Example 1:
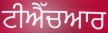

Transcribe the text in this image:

ਟੀਐੱਚਆਰ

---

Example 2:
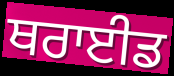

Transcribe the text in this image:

ਥਰਾਈਡ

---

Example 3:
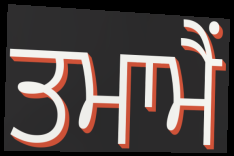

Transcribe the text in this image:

ਤਮਾਮੈਂ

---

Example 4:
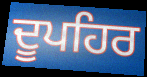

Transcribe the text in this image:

ਦੂਪਹਿਰ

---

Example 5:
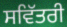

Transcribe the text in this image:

ਸਵਿੱਤਰੀ